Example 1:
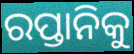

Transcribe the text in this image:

ରପ୍ତାନିକୁ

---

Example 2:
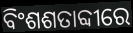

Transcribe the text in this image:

ବିଂଶଶତାବ୍ଦୀରେ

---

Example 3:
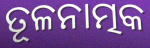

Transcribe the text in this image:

ତୂଳନାତ୍ମକ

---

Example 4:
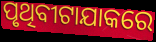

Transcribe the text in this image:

ପୃଥିବୀଟାଯାକରେ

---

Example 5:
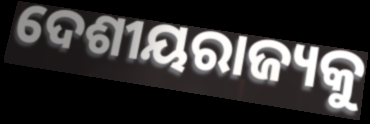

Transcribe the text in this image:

ଦେଶୀୟରାଜ୍ୟକୁ